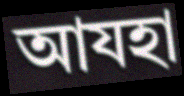
আযহা